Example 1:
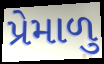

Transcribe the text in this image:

પ્રેમાળુ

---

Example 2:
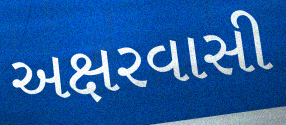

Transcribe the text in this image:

અક્ષરવાસી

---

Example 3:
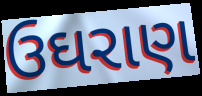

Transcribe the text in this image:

ઉઘરાણ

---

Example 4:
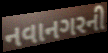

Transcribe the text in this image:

નવાનગરની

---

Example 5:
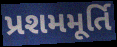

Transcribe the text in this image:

પ્રશમમૂર્તિ